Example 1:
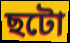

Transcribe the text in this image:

ছটো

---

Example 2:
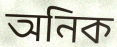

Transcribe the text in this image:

অনিক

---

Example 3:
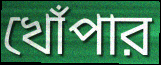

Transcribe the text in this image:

খোঁপার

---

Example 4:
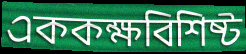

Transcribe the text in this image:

এককক্ষবিশিষ্ট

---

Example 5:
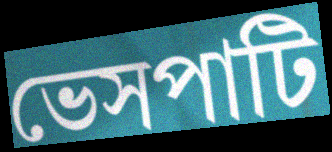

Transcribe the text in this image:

ভেসপাটি